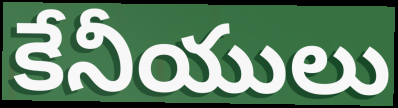
కేనీయులు